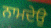
ਨਾਮਦੇਉ